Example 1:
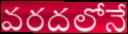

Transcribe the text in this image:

వరదలోనే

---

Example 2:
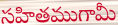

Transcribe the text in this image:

సహితముగామీ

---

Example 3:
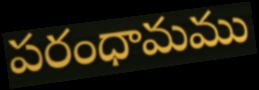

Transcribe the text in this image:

పరంధామము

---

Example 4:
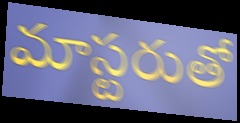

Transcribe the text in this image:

మాస్టరుతో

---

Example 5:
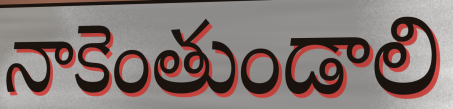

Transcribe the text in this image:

నాకెంతుండాలి